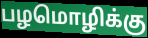
பழமொழிக்கு